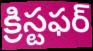
క్రిస్టఫర్